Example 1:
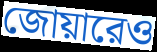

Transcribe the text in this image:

জোয়ারেও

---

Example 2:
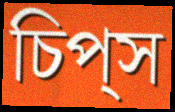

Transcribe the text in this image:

চিপ্‌স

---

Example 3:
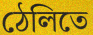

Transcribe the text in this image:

ঠেলিতে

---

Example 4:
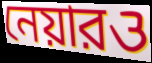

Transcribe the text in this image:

নেয়ারও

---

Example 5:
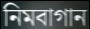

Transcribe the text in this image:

নিমবাগান